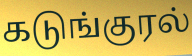
கடுங்குரல்